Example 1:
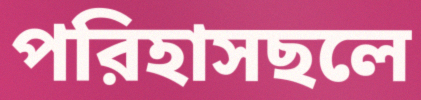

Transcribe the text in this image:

পরিহাসছলে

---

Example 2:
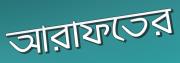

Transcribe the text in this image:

আরাফতের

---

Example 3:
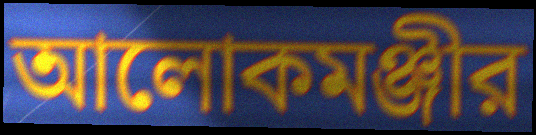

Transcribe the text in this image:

আলোকমঞ্জীর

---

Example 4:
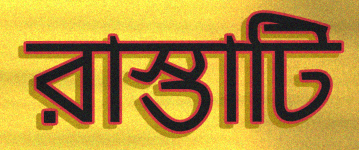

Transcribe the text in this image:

রাস্তাটি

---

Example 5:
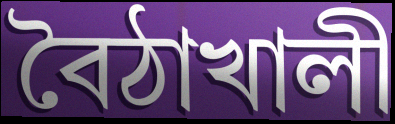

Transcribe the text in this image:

বৈঠাখালী